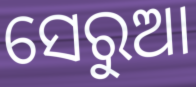
ସେରୁଆ